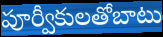
పూర్వీకులతోబాటు